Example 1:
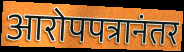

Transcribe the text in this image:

आरोपपत्रानंतर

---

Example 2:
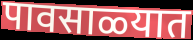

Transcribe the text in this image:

पावसाळ्यात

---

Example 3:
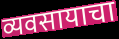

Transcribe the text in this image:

व्यवसायाचा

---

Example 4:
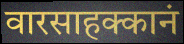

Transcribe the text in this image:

वारसाहक्कानं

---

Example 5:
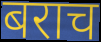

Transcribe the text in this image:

बराच